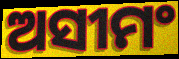
ଅସୀମଂ